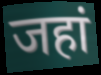
जहां